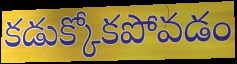
కడుక్కోకపోవడం